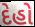
દેહો